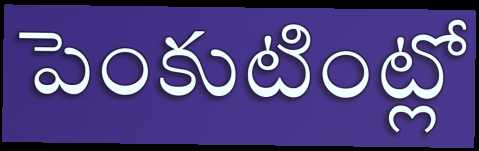
పెంకుటింట్లో